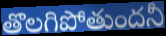
తొలగిపోతుందనీ